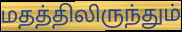
மதத்திலிருந்தும்